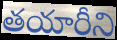
తయారీని